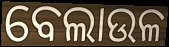
ବେଲାଉଳ